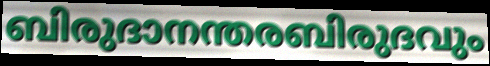
ബിരുദാനന്തരബിരുദവും